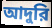
আদুরি